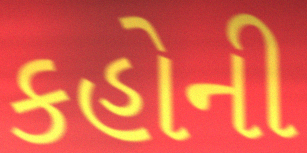
કહોની